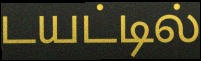
டயட்டில்